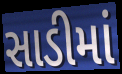
સાડીમાં